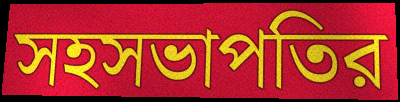
সহসভাপতির